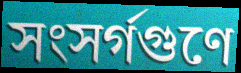
সংসর্গগুণে